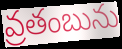
వ్రతంబును